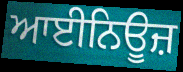
ਆਈਨਿਊਜ਼